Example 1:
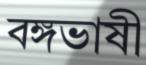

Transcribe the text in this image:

বঙ্গভাষী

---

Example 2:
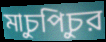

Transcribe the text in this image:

মাচুপিচুর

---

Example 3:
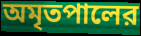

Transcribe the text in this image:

অমৃতপালের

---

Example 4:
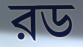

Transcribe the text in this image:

রড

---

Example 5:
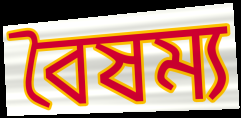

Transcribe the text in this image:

বৈষম্য